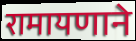
रामायणाने